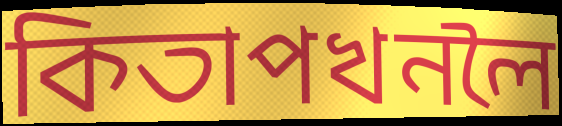
কিতাপখনলৈ